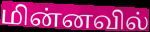
மின்னவில்